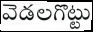
వెడలగొట్టు